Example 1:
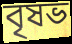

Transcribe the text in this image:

বৃষভ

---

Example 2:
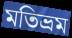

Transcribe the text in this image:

মতিভ্রম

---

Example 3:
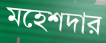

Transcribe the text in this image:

মহেশদার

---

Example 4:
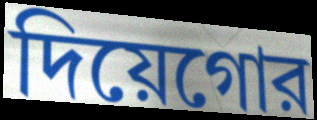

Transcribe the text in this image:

দিয়েগোর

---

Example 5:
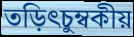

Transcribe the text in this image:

তড়িৎচুম্বকীয়